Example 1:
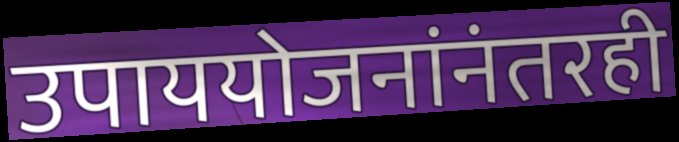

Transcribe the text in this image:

उपाययोजनांनंतरही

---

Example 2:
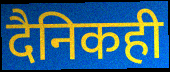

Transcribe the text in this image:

दैनिकही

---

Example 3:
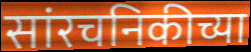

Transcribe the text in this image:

सांरचनिकीच्या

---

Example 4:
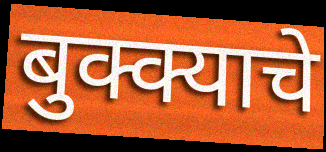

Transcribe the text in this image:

बुक्क्याचे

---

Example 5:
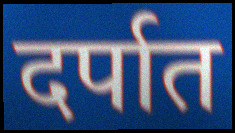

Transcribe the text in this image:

दर्पात